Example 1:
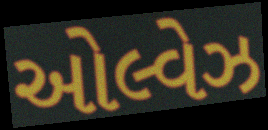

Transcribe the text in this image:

ઓલ્વેઝ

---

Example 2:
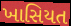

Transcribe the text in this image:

ખાસિયત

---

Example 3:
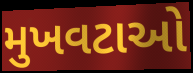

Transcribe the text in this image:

મુખવટાઓ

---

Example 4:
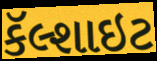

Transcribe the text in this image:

કૅલ્શાઇટ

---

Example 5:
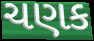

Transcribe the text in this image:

ચણક